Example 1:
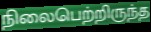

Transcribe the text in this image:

நிலைபெற்றிருந்த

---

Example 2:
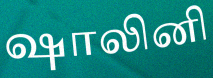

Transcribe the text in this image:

ஷாலினி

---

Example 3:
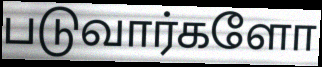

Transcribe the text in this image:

படுவார்களோ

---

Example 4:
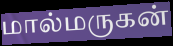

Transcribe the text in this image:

மால்மருகன்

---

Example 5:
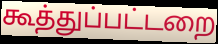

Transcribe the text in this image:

கூத்துப்பட்டறை